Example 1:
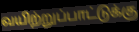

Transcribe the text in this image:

வயிற்றுப்பாட்டுக்கு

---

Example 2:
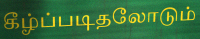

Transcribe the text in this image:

கீழ்ப்படிதலோடும்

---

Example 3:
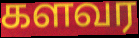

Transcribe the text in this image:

களவர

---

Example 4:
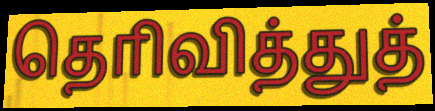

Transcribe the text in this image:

தெரிவித்துத்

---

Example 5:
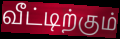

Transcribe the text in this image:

வீட்டிற்கும்